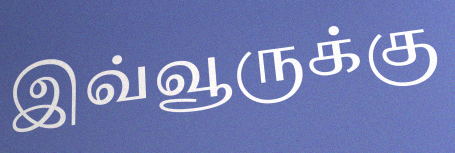
இவ்வூருக்கு